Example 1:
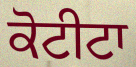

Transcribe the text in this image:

ਕੋਟੀਟਾ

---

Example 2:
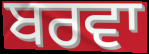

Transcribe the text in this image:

ਬਰਵਾ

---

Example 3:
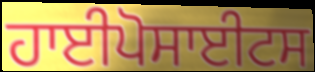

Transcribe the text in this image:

ਹਾਈਪੋਸਾਈਟਸ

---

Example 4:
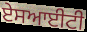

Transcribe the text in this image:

ਏਸਆਈਟੀ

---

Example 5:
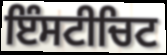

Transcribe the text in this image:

ਇੰਸਟੀਚਿਟ